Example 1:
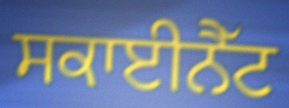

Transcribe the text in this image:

ਸਕਾਈਨੈੱਟ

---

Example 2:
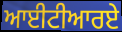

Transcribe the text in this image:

ਆਈਟੀਆਰਏ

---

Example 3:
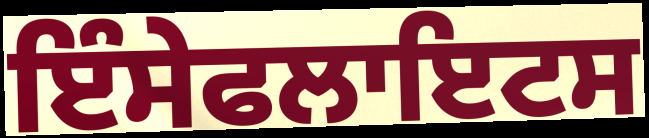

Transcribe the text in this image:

ਇੰਸੇਫਲਾਇਟਸ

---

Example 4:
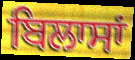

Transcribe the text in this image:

ਬਿਲਾਸਾਂ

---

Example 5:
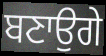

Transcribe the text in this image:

ਬਣਾਉਗੇ